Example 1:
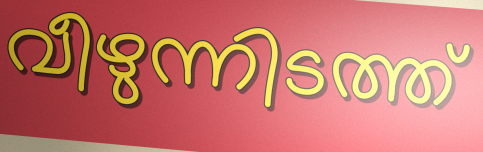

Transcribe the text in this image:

വീഴുന്നിടത്ത്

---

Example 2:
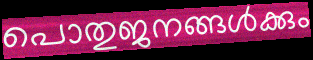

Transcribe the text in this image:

പൊതുജനങ്ങൾക്കും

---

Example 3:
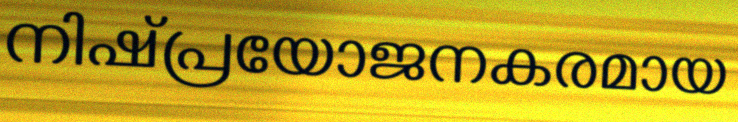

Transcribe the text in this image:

നിഷ്പ്രയോജനകരമായ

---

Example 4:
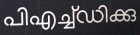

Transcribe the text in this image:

പിഎച്ച്ഡിക്കു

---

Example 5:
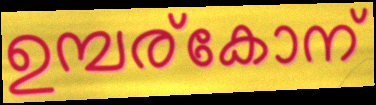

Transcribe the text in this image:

ഉമ്പര്കോന്